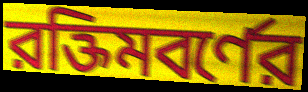
রক্তিমবর্ণের